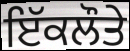
ਇੱਕਲੌਤੇ